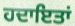
ਹਦਾਇਤਾਂ